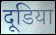
दूडिया